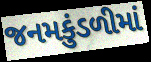
જનમકુંડળીમાં